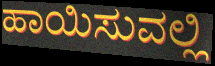
ಹಾಯಿಸುವಲ್ಲಿ